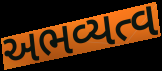
અભવ્યત્વ